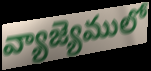
వ్యాజ్యెములో